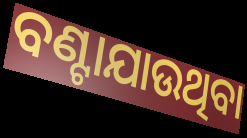
ବଣ୍ଟାଯାଉଥିବା